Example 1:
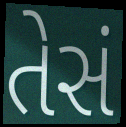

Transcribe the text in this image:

તેસં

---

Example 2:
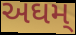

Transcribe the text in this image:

અઘમ્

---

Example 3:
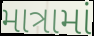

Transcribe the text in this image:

માત્રામાં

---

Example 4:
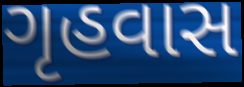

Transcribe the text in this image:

ગૃહવાસ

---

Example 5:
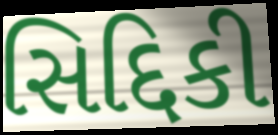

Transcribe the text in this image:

સિદ્દિકી